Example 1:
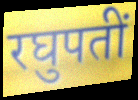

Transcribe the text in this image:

रघुपतीं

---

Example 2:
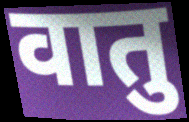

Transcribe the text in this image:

वातु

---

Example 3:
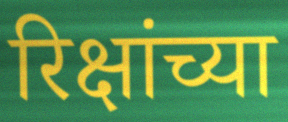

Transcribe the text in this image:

रिक्षांच्या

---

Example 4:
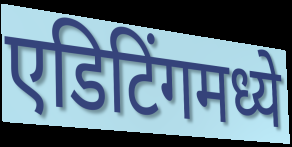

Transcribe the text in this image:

एडिटिंगमध्ये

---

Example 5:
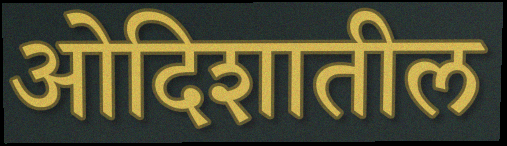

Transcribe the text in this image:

ओदिशातील